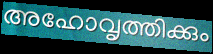
അഹോവൃത്തിക്കും